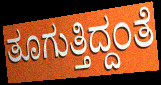
ತೂಗುತ್ತಿದ್ದಂತೆ